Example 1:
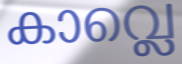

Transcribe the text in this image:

കാവ്ലെ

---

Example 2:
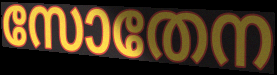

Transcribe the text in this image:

സോതേന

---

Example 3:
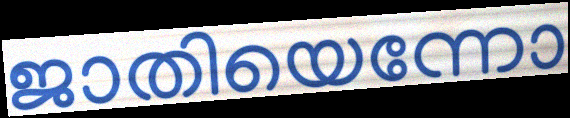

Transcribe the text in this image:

ജാതിയെന്നോ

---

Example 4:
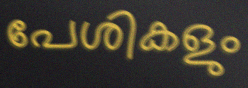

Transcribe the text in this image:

പേശികളും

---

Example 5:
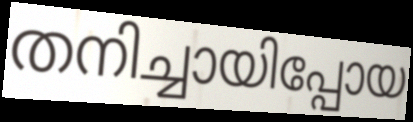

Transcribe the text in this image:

തനിച്ചായിപ്പോയ